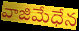
వాజిమేధేన